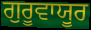
ਗੁਰੂਵਾਯੂਰ